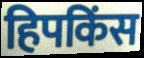
हिपकिंस